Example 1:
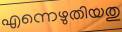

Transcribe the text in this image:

എന്നെഴുതിയതു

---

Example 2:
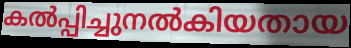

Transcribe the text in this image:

കൽപ്പിച്ചുനൽകിയതായ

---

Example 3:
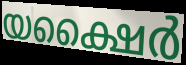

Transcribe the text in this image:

യക്ഷൈർ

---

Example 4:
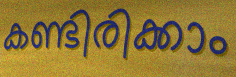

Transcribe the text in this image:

കണ്ടിരിക്കാം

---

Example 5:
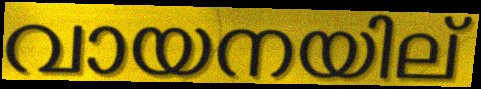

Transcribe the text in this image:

വായനയില്